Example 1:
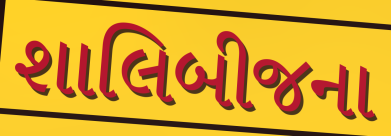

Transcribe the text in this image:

શાલિબીજના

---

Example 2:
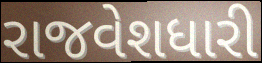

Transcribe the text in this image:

રાજવેશધારી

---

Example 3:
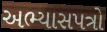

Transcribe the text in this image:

અભ્યાસપત્રો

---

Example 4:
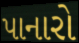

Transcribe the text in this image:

પાનારો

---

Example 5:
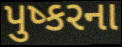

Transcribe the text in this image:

પુષ્કરના